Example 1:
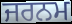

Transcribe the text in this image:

ਜਰਨਮ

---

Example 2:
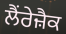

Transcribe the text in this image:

ਲੈਂਰੇਜ਼ੈਕ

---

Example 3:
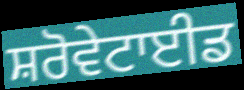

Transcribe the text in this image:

ਸ਼ਰੋਵੇਟਾਈਡ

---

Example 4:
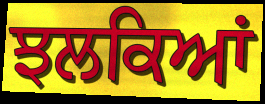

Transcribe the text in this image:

ਝਲਕਿਆਂ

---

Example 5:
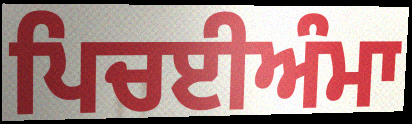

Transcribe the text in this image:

ਪਿਚਈਅੰਮਾ